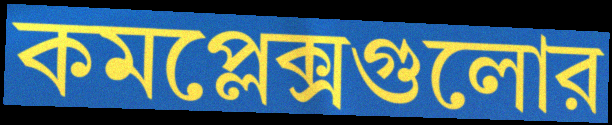
কমপ্লেক্সগুলোর